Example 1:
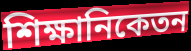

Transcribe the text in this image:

শিক্ষানিকেতন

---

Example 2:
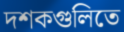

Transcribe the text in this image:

দশকগুলিতে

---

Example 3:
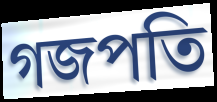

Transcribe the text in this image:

গজপতি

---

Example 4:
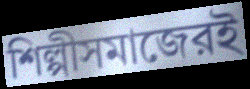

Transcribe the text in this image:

শিল্পীসমাজেরই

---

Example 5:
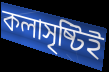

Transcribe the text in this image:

কলাসৃষ্টিই